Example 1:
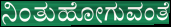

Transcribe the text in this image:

ನಿಂತುಹೋಗುವಂತೆ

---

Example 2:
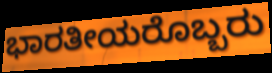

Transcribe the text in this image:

ಭಾರತೀಯರೊಬ್ಬರು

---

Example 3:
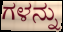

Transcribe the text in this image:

ಗಳನ್ನು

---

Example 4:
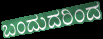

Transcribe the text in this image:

ಬಂದುದರಿಂದ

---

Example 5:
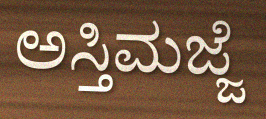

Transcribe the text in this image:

ಅಸ್ತಿಮಜ್ಜೆ